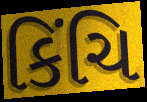
કિંચિ